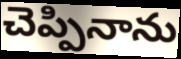
చెప్పినాను